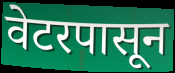
वेटरपासून